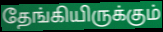
தேங்கியிருக்கும்